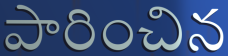
పారించిన